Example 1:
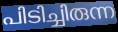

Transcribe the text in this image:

പിടിച്ചിരുന്ന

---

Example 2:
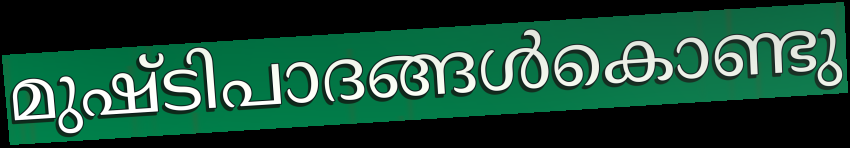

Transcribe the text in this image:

മുഷ്ടിപാദങ്ങൾകൊണ്ടു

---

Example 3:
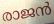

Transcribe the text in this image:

രാജൻ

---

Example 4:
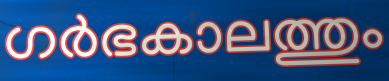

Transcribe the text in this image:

ഗർഭകാലത്തും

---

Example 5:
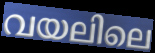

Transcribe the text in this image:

വയലിലെ